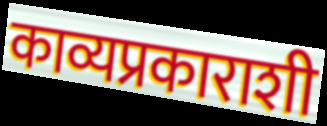
काव्यप्रकाराशी